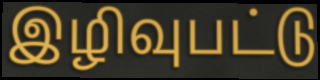
இழிவுபட்டு